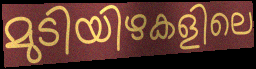
മുടിയിഴകളിലെ